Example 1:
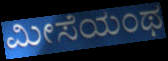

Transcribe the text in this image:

ಮೀಸೆಯಂಥ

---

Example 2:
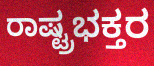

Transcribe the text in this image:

ರಾಷ್ಟ್ರಭಕ್ತರ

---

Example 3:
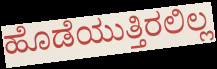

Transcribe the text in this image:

ಹೊಡೆಯುತ್ತಿರಲಿಲ್ಲ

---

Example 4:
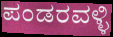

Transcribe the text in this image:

ಪಂಡರವಳ್ಳಿ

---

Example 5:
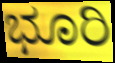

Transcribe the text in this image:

ಭೂರಿ